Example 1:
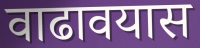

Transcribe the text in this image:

वाढावयास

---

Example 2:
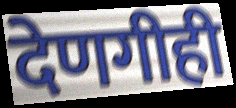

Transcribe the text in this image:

देणगीही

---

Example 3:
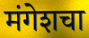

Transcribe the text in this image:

मंगेशचा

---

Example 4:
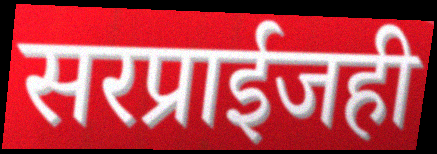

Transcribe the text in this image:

सरप्राईजही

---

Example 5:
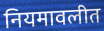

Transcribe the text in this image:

नियमावलीत